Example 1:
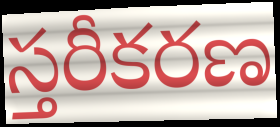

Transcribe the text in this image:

స్తరీకరణ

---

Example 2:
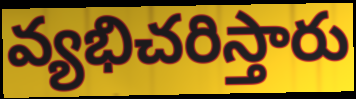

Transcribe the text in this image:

వ్యభిచరిస్తారు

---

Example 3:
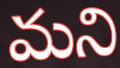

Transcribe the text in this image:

మని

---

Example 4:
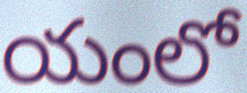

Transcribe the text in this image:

యంలో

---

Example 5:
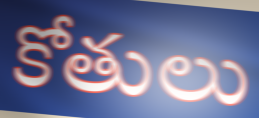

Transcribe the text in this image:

కోతులు